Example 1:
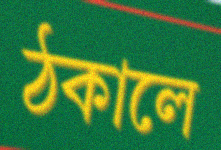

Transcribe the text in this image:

ঠকালে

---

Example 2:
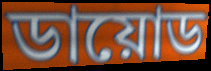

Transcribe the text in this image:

ডায়োড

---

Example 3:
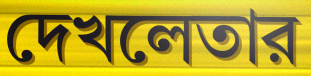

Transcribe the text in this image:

দেখলেতার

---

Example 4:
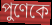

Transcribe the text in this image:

পুণেকে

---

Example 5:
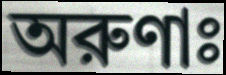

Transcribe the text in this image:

অরুণাঃ